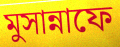
মুসান্নাফে